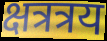
क्षत्रत्रय